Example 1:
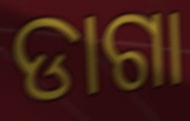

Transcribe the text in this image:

ଡାଗା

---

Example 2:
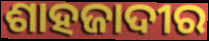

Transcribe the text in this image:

ଶାହଜାଦୀର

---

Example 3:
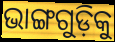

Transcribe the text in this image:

ଭାଙ୍ଗଗୁଡ଼ିକୁ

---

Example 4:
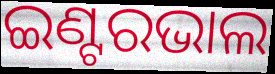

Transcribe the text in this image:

ଇଣ୍ଟରଭାଲ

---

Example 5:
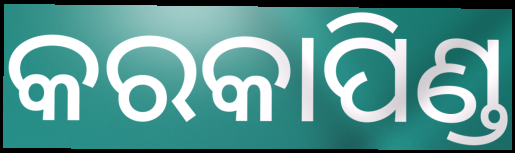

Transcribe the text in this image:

କରକାପିଣ୍ଡ